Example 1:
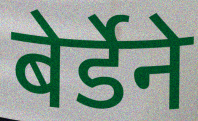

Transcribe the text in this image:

बेर्डेने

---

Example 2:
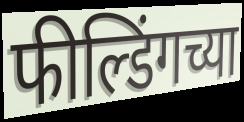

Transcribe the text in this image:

फील्डिंगच्या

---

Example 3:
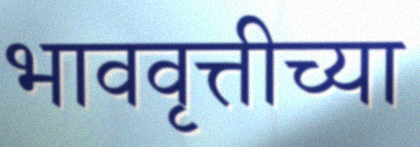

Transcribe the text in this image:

भाववृत्तीच्या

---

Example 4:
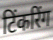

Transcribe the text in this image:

टिंकरिंग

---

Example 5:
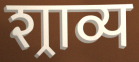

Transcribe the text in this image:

श्राव्य